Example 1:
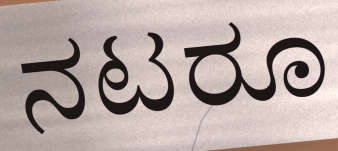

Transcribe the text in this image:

ನಟರೂ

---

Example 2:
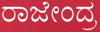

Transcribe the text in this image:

ರಾಜೇಂದ್ರ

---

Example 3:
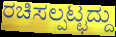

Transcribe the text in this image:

ರಚಿಸಲ್ಪಟ್ಟದ್ದು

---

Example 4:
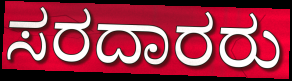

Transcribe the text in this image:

ಸರದಾರರು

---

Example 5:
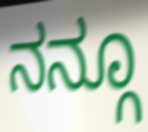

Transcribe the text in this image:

ನನ್ಗೂ